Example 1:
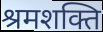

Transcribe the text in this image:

श्रमशक्ति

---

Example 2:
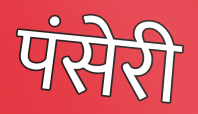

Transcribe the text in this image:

पंसेरी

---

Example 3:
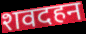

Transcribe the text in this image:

शवदहन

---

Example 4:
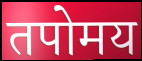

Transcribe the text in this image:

तपोमय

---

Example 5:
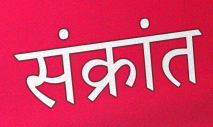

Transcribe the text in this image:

संक्रांत